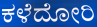
ಕಳೆದೋರಿ